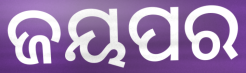
ଜୟପର